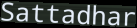
Sattadhar